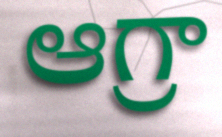
ఆగ్రా